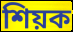
শিয়ক